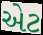
એટ